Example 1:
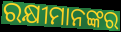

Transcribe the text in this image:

ରକ୍ଷୀମାନଙ୍କର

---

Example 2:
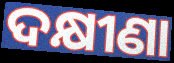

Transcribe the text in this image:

ଦକ୍ଷୀଣା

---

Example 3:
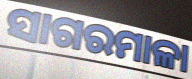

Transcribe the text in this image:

ସାଗରମାଳା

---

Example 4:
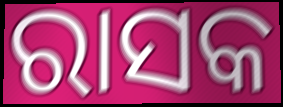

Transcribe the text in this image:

ରାସକ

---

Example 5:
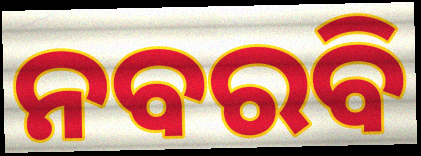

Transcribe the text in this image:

ନବରବି